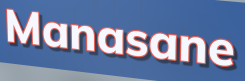
Manasane